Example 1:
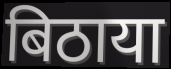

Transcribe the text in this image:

बिठाया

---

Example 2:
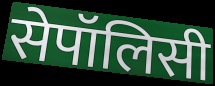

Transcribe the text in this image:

सेपॉलिसी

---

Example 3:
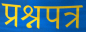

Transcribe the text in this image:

प्रश्नपत्र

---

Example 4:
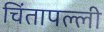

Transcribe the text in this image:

चिंतापल्ली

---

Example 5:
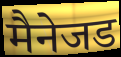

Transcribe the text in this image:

मैनेजड